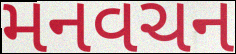
મનવચન